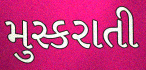
મુસ્કરાતી